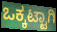
ಒಕ್ಕಟ್ಟಾಗಿ